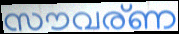
സൗവര്ണ